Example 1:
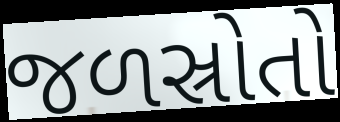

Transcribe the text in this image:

જળસ્રોતો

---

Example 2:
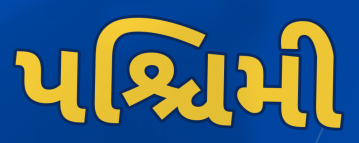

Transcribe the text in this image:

પશ્ચિમી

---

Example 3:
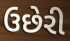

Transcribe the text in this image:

ઉછેરી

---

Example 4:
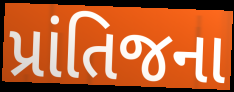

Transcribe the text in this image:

પ્રાંતિજના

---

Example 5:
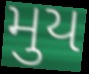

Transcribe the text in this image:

મુય